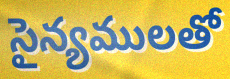
సైన్యములతో